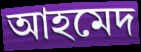
আহমেদ